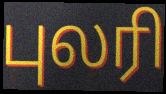
புலரி